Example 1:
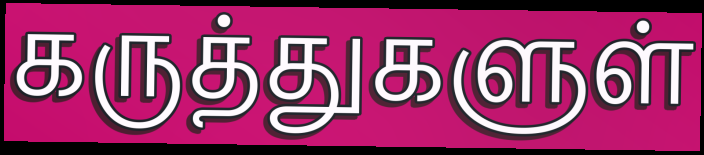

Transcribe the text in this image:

கருத்துகளுள்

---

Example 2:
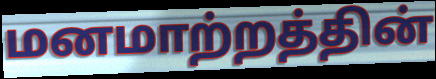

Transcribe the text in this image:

மனமாற்றத்தின்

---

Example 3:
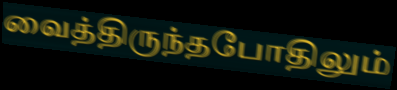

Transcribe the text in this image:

வைத்திருந்தபோதிலும்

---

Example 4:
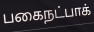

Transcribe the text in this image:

பகைநட்பாக்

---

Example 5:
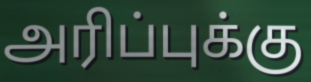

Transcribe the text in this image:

அரிப்புக்கு